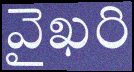
వైఖరి